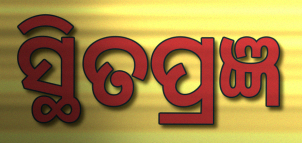
ସ୍ଥିତପ୍ରଜ୍ଞ